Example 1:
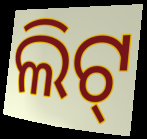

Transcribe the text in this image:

ଲିଟ୍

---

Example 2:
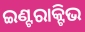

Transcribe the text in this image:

ଇଣ୍ଟରାକ୍ଟିଭ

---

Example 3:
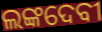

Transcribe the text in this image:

ଲଙ୍କଦେବୀ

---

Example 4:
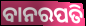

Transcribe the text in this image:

ବାନରପତି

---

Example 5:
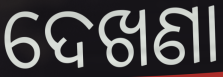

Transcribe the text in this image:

ଦେଖଣା